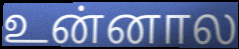
உன்னால